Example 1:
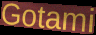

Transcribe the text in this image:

Gotami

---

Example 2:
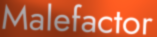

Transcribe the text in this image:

Malefactor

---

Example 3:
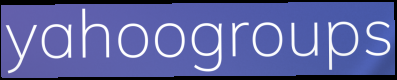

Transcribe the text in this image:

yahoogroups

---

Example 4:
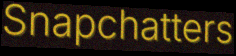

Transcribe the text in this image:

Snapchatters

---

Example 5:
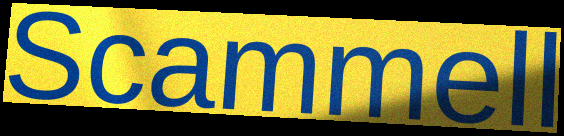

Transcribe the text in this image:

Scammell